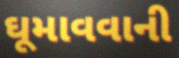
ઘૂમાવવાની